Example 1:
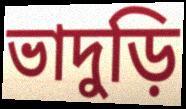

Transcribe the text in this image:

ভাদুড়ি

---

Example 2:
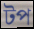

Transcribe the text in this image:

টপ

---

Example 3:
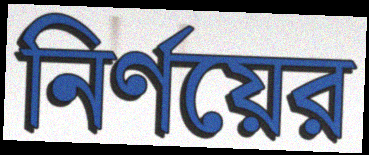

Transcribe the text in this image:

নির্ণয়ের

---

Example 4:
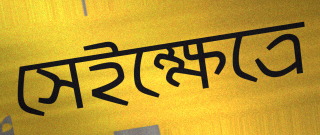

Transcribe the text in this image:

সেইক্ষেত্রে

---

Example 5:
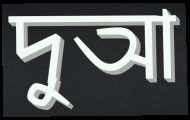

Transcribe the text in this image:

দুআ